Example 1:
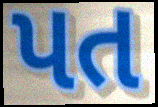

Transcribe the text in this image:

પત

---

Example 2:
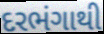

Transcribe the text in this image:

દરભંગાથી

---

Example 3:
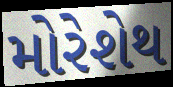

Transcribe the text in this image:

મોરેશેથ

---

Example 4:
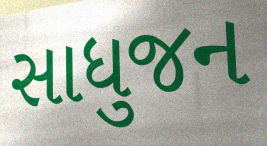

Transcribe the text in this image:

સાધુજન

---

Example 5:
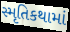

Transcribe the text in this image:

સ્મૃતિકથામાં